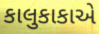
કાલુકાકાએ